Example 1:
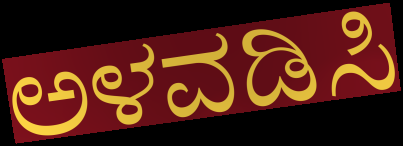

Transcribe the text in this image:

ಅಳವಡಿಸಿ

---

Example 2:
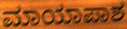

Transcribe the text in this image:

ಮಾಯಾಪಾಶ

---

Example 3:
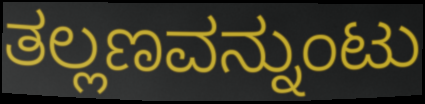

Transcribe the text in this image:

ತಲ್ಲಣವನ್ನುಂಟು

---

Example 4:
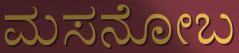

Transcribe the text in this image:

ಮಸನೋಬ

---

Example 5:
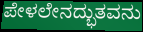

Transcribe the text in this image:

ಪೇಳಲೇನದ್ಭುತವನು